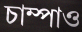
চাম্পাও